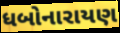
ધબોનારાયણ